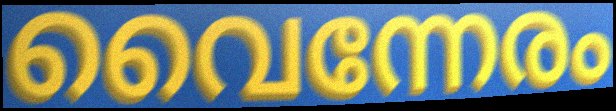
വൈന്നേരം